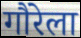
गौरेला